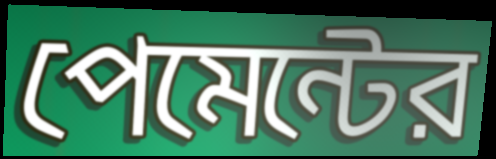
পেমেন্টের